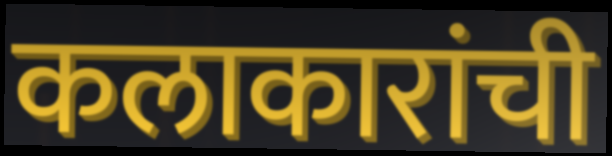
कलाकारांची